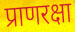
प्राणरक्षा